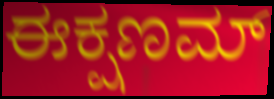
ಈಕ್ಷಣಮ್